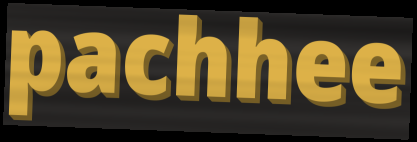
pachhee